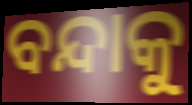
ବନ୍ଦାକୁ